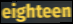
eighteen